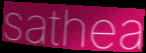
sathea